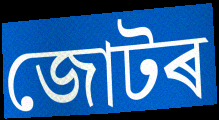
জোটৰ